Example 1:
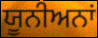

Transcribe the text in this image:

ਯੂਨੀਅਨਾਂ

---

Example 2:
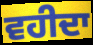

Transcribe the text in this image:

ਵਹੀਦਾ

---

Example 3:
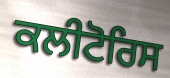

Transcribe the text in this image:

ਕਲੀਟੋਰਿਸ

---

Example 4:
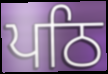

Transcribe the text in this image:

ਪਠਿ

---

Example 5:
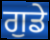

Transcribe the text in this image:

ਗੁਡੇ